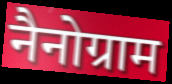
नैनोग्राम